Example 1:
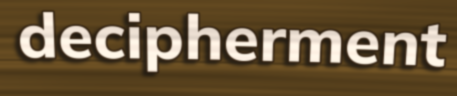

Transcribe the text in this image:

decipherment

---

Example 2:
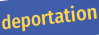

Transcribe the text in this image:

deportation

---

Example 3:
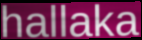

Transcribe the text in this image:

hallaka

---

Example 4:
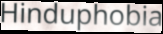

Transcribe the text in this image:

Hinduphobia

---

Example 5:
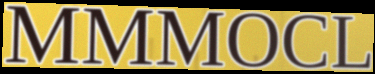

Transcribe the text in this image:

MMMOCL